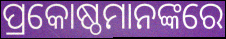
ପ୍ରକୋଷ୍ଠମାନଙ୍କରେ